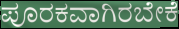
ಪೂರಕವಾಗಿರಬೇಕೆ